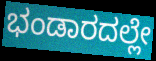
ಭಂಡಾರದಲ್ಲೇ